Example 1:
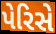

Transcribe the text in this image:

પેરિસે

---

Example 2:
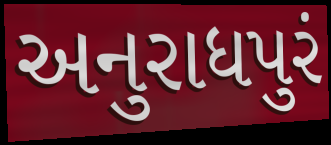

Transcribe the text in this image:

અનુરાધપુરં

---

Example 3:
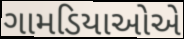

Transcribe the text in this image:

ગામડિયાઓએ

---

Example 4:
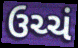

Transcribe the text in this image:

ઉચ્ચં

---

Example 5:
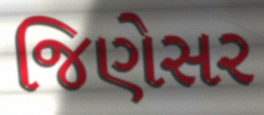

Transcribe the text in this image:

જિણેસર